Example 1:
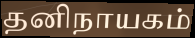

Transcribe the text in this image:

தனிநாயகம்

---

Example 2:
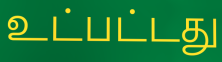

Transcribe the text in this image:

உட்பட்டது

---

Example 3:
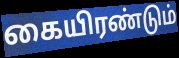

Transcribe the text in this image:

கையிரண்டும்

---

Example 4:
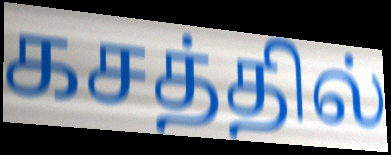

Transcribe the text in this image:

கசத்தில்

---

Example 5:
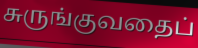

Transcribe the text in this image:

சுருங்குவதைப்